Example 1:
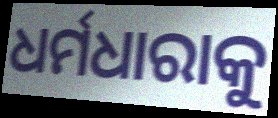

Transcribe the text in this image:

ଧର୍ମଧାରାକୁ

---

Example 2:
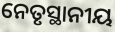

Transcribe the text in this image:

ନେତୃସ୍ଥାନୀୟ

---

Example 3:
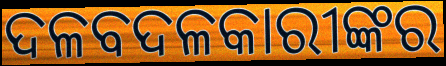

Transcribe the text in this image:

ଦଳବଦଳକାରୀଙ୍କର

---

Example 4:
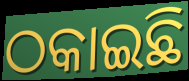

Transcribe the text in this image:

ଠକାଇଛି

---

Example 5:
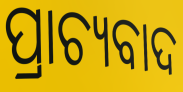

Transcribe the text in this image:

ପ୍ରାଚ୍ୟବାଦ